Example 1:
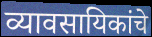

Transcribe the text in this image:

व्यावसायिकांचे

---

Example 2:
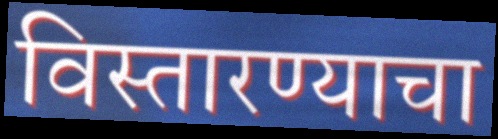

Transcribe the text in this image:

विस्तारण्याचा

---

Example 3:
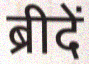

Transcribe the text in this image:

ब्रीदें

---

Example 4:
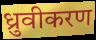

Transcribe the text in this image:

ध्रुवीकरण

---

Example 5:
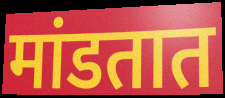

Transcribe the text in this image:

मांडतात